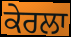
ਕੇਰਲਾ